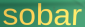
sobar